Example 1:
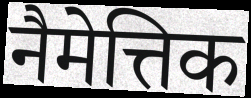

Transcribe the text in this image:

नैमेत्तिक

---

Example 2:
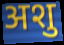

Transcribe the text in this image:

अशु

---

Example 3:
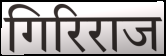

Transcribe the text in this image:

गिरिराज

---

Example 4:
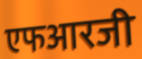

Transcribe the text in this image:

एफआरजी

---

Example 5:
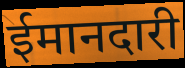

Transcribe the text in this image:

ईमानदारी